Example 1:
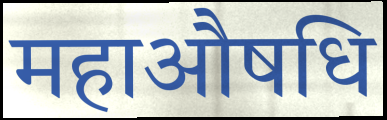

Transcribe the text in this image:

महाऔषधि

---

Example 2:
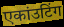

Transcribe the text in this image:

एकांउटिंग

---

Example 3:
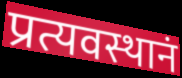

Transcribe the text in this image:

प्रत्यवस्थानं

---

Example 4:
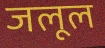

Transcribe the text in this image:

जलूल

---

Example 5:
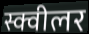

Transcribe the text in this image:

स्क्वीलर